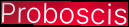
Proboscis